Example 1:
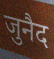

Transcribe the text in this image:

जुनैद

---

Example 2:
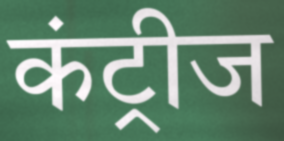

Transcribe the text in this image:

कंट्रीज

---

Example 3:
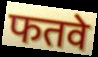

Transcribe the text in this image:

फतवे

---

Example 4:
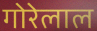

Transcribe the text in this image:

गोरेलाल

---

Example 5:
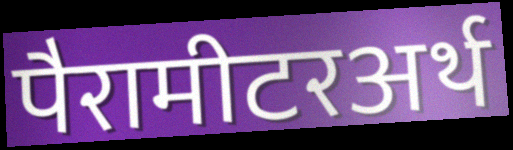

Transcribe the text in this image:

पैरामीटरअर्थ